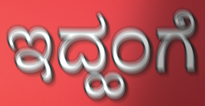
ಇದ್ಹಂಗೆ